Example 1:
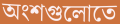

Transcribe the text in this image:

অংশগুলোতে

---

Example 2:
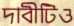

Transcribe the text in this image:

দাবীটিও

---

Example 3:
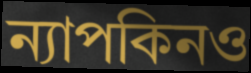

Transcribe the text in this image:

ন্যাপকিনও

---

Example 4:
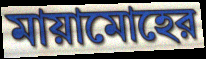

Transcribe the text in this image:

মায়ামোহের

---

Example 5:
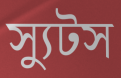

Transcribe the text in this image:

স্যুটস